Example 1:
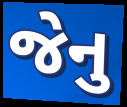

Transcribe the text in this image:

જેનુ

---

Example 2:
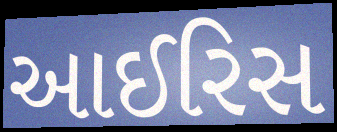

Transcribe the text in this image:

આઈરિસ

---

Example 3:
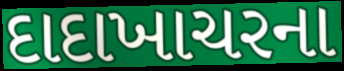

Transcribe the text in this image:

દાદાખાચરના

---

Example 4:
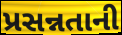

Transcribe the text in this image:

પ્રસન્નતાની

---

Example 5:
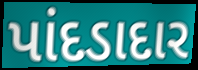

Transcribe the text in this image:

પાંદડાદાર